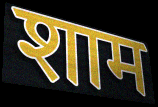
शाम